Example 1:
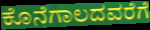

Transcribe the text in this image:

ಕೊನೆಗಾಲದವರೆಗೆ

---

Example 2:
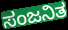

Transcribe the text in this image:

ಸಂಜನಿತ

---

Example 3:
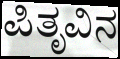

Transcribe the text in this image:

ಪಿತೃವಿನ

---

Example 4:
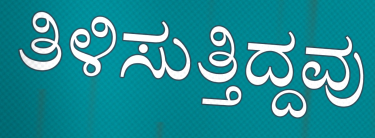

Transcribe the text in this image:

ತಿಳಿಸುತ್ತಿದ್ದವು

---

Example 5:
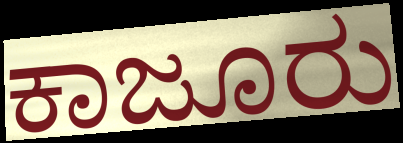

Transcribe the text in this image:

ಕಾಜೂರು